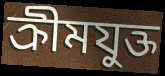
ক্ৰীমযুক্ত